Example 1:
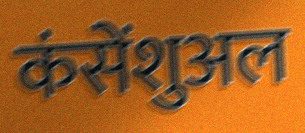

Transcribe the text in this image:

कंसेंशुअल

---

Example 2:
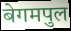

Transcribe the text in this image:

बेगमपुल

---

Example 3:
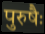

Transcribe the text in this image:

पुरुषैः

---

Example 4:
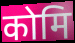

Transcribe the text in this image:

कोमि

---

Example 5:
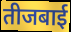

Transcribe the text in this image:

तीजबाई